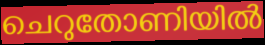
ചെറുതോണിയിൽ